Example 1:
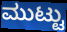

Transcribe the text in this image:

ಮುಟ್ಟು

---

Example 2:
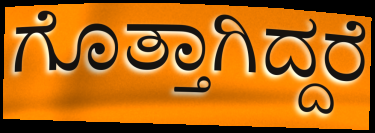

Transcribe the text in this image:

ಗೊತ್ತಾಗಿದ್ದರೆ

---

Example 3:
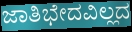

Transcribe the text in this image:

ಜಾತಿಭೇದವಿಲ್ಲದ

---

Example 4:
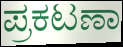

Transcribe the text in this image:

ಪ್ರಕಟಣಾ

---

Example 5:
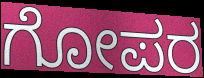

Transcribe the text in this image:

ಗೋಪರ